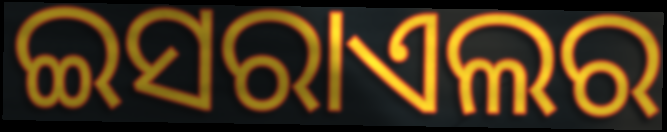
ଇସରାଏଲର